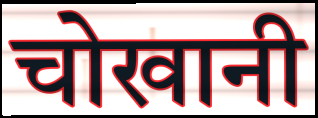
चोखानी